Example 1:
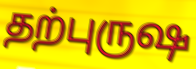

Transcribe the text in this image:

தற்புருஷ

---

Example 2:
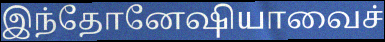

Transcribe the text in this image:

இந்தோனேஷியாவைச்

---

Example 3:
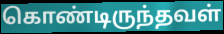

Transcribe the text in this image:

கொண்டிருந்தவள்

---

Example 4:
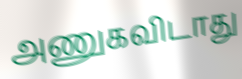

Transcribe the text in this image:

அணுகவிடாது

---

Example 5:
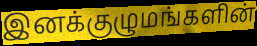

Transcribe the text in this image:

இனக்குழுமங்களின்